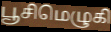
பூசிமெழுகி